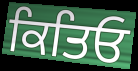
ਕਿਤਿਓ